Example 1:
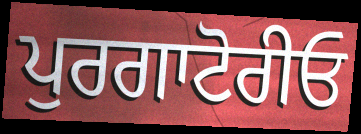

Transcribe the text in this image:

ਪੁਰਗਾਟੋਰੀਓ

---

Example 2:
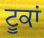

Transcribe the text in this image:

ਟੂਕਾਂ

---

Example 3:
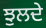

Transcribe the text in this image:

ਝੁਲਦੇ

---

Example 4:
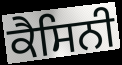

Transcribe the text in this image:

ਕੈਸਿਨੀ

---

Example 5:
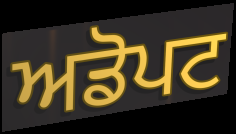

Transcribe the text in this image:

ਅਡੋਪਟ